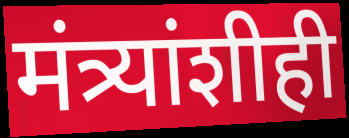
मंत्र्यांशीही